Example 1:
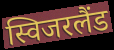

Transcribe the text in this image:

स्विजरलैंड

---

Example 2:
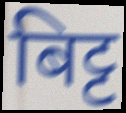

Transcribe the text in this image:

बिट्ट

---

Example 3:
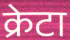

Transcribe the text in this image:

क्रेटा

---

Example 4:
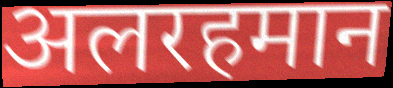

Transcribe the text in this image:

अलरहमान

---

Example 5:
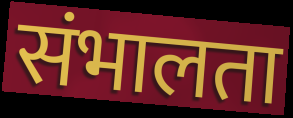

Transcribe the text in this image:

संभालता